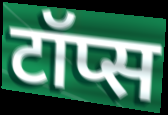
टॉप्स